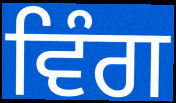
ਵਿੰਗ